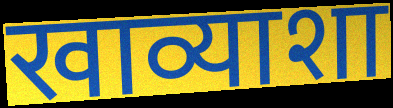
खाव्याशा